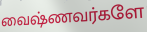
வைஷ்ணவர்களே